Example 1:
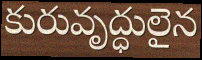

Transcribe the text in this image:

కురువృద్ధులైన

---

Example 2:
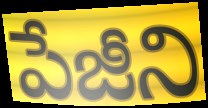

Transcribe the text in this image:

పేజీని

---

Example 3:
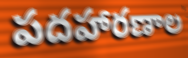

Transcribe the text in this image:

పదహారణాల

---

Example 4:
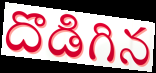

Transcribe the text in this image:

దొడిగిన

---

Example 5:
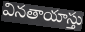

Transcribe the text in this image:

వినతాయాస్తు